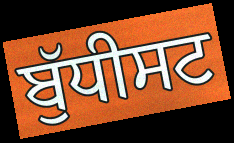
ਬੁੱਧੀਸਟ